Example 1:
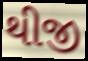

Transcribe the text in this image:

થીજી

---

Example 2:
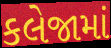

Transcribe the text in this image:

કલેજામાં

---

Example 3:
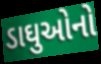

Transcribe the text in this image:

ડાઘુઓનો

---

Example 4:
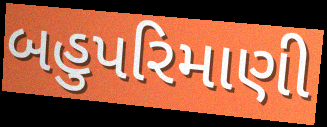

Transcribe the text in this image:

બહુપરિમાણી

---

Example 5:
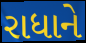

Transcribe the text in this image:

રાધાને